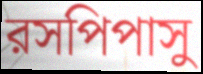
রসপিপাসু